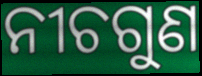
ନୀଚଗୁଣ